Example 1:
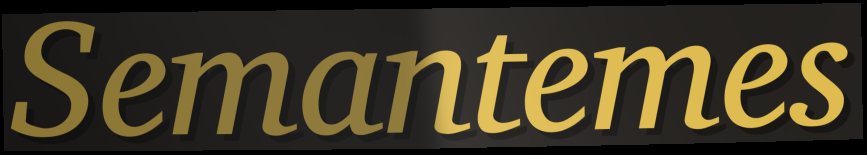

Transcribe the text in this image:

Semantemes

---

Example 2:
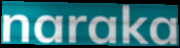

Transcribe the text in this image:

naraka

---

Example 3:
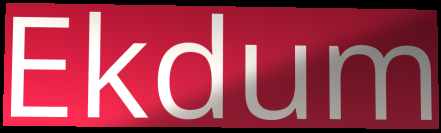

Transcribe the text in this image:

Ekdum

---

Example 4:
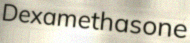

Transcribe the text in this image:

Dexamethasone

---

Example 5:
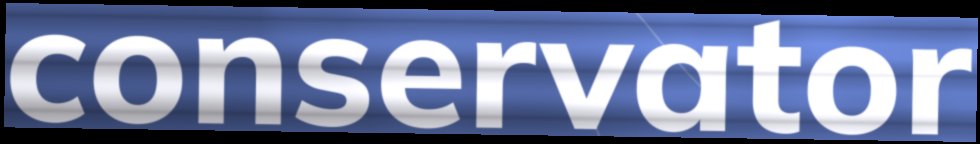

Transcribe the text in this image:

conservator